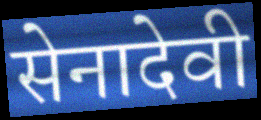
सेनादेवी